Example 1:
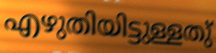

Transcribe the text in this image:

എഴുതിയിട്ടുള്ളതു്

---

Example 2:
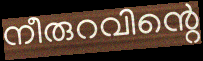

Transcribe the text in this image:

നീരുറവിന്റെ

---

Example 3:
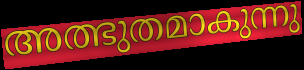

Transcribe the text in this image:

അത്ഭുതമാകുന്നു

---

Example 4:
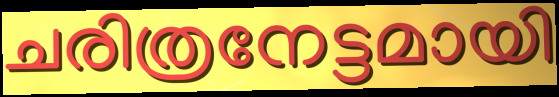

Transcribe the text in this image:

ചരിത്രനേട്ടമായി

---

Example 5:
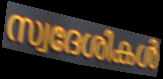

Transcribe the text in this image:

സ്വദേശികൾ